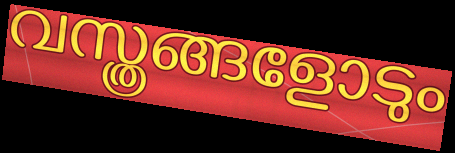
വസ്ത്രങ്ങളോടും